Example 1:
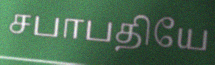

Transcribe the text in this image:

சபாபதியே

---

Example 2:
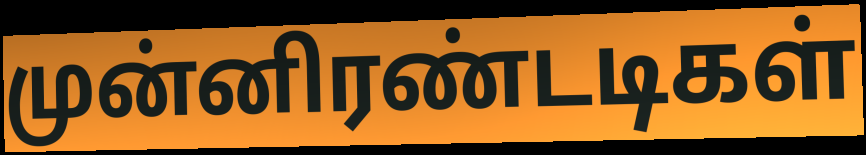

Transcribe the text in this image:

முன்னிரண்டடிகள்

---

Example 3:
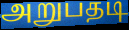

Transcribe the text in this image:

அறுபதடி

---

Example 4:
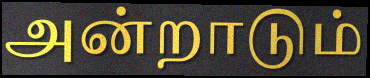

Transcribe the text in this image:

அன்றாடும்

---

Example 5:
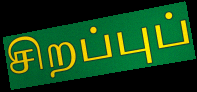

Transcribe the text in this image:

சிறப்புப்